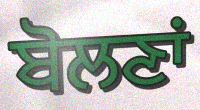
ਬੋਲਣਾਂ